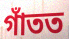
গাঁতত